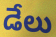
డేలు